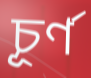
চূর্ণ